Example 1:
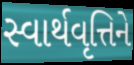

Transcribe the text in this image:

સ્વાર્થવૃત્તિને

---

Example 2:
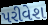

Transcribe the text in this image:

પરીવેશ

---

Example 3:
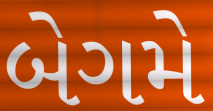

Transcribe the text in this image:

બેગમે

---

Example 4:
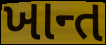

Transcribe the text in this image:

ખાન્ત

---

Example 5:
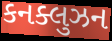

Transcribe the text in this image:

કનક્લુઝન